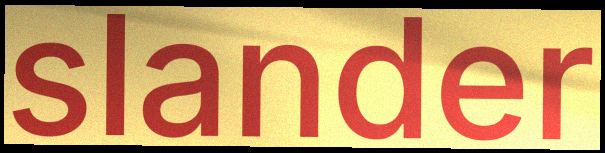
slander